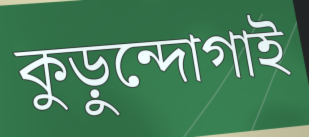
কুড়ুন্দোগাই